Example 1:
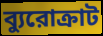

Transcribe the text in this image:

ব্যুরোক্রাট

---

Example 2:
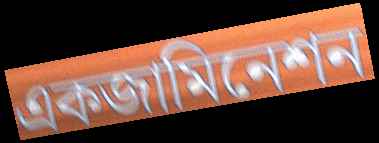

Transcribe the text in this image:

একজামিনেশন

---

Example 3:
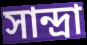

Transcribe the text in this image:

সান্দ্রা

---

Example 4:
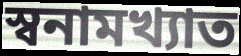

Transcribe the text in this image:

স্বনামখ্যাত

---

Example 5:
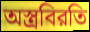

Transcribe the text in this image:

অস্ত্রবিরতি